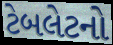
ટેબલેટનો